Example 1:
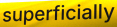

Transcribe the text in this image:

superficially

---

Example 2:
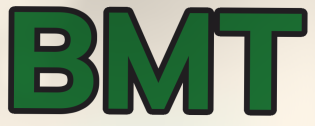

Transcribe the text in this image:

BMT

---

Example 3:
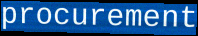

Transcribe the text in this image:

procurement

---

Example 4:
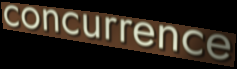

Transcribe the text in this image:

concurrence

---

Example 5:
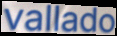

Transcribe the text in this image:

vallado